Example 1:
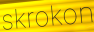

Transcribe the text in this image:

skrokon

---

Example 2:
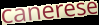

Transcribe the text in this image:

canerese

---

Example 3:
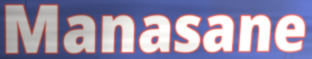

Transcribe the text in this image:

Manasane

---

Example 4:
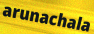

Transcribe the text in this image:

arunachala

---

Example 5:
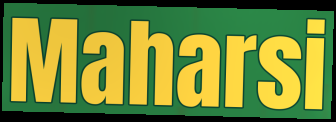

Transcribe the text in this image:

Maharsi